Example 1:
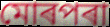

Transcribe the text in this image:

মোৰপৰা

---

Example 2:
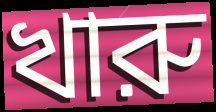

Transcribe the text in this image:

খাৰু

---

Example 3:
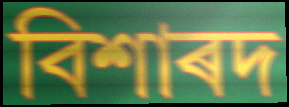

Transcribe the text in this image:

বিশাৰদ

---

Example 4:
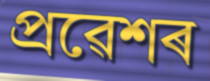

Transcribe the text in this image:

প্ৰৱেশৰ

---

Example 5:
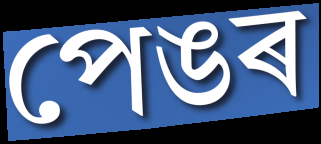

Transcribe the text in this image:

পেঙৰ